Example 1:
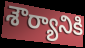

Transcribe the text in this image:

శౌర్యానికి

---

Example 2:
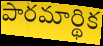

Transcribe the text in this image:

పారమార్థిక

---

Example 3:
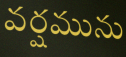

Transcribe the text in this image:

వర్షమును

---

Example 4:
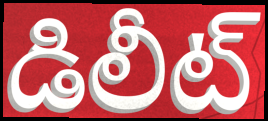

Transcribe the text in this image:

డిలీట్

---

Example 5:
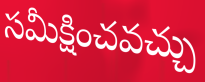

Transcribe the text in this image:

సమీక్షించవచ్చు